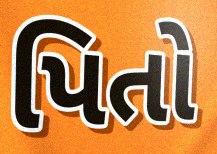
પિતો